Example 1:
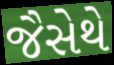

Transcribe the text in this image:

જૈસેથે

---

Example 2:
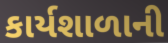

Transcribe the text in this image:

કાર્યશાળાની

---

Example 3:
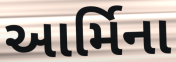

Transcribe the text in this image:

આર્મિના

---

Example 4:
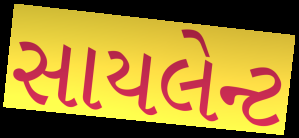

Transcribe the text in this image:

સાયલેન્ટ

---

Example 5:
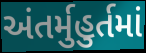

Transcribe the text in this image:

અંતર્મુહુર્તમાં